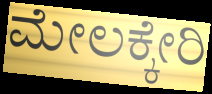
ಮೇಲಕ್ಕೇರಿ